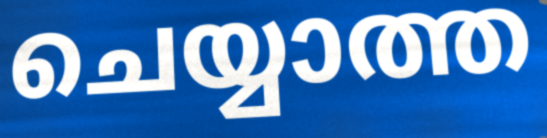
ചെയ്യാത്ത